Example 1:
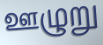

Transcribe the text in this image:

ஊழுறு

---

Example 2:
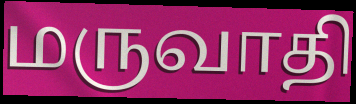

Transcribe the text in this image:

மருவாதி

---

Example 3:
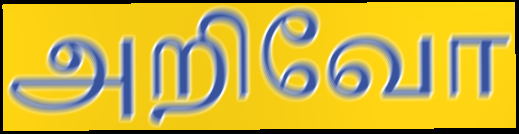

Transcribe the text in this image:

அறிவோ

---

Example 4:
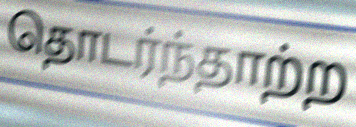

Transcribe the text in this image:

தொடர்ந்தாற்ற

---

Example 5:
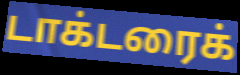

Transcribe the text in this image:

டாக்டரைக்